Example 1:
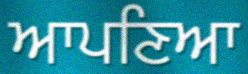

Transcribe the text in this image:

ਆਪਣਿਆ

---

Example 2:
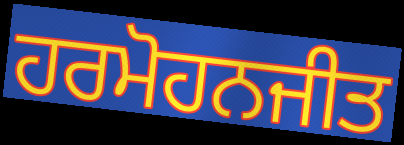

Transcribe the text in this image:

ਹਰਮੋਹਨਜੀਤ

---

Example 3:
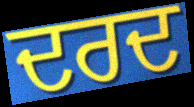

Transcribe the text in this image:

ਦਰਦ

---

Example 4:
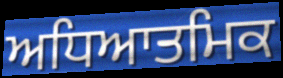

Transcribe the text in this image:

ਅਧਿਆਤਮਿਕ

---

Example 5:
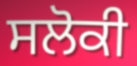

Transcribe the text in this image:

ਸਲੋਕੀ